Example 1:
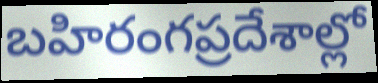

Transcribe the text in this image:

బహిరంగప్రదేశాల్లో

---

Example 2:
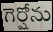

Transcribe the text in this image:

గెర్షోను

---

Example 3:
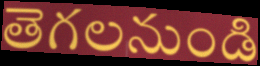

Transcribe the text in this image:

తెగలనుండి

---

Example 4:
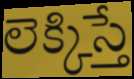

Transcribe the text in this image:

లెక్కిస్తే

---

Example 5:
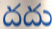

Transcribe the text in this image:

దదు